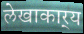
लेखाकार्य